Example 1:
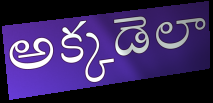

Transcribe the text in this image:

అక్కడెలా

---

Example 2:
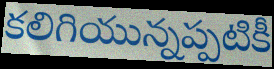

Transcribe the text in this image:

కలిగియున్నప్పటికీ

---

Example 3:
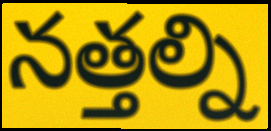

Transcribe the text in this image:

నత్తల్ని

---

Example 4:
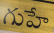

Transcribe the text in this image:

గుహే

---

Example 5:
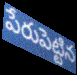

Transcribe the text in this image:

పేరుపెట్టిన